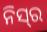
ନିସ୍‌ର